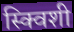
स्क्विशी